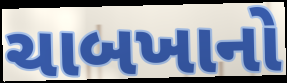
ચાબખાનો